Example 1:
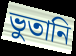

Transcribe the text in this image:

ভুতানি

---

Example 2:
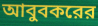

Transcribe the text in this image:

আবুবকরের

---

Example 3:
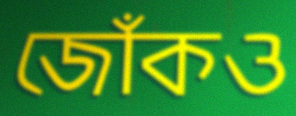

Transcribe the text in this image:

জোঁকও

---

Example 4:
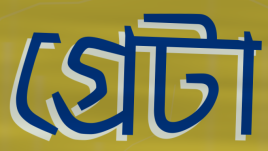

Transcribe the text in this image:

গ্রেটা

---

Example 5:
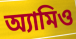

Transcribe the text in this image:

অ্যামিও